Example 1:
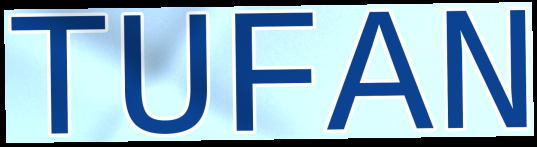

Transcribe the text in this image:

TUFAN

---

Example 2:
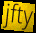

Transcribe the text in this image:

jfty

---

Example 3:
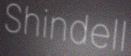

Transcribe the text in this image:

Shindell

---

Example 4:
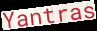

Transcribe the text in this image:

Yantras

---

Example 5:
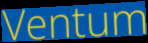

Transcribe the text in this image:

Ventum